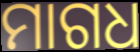
ମାଗଧ